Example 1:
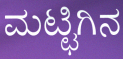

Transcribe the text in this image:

ಮಟ್ಟಿಗಿನ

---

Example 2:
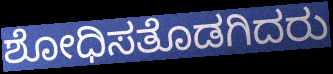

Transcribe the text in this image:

ಶೋಧಿಸತೊಡಗಿದರು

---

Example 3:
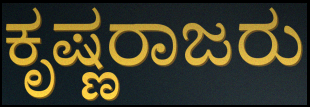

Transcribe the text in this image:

ಕೃಷ್ಣರಾಜರು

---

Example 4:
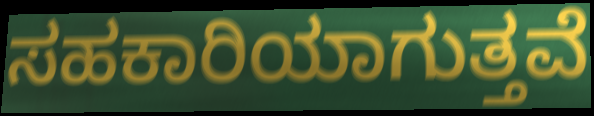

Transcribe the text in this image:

ಸಹಕಾರಿಯಾಗುತ್ತವೆ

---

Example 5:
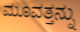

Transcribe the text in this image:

ಮೂವತ್ತನ್ನು